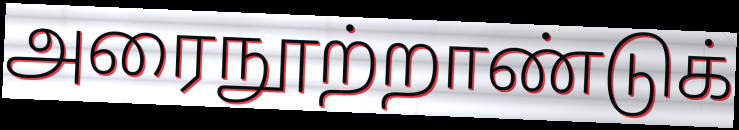
அரைநூற்றாண்டுக்